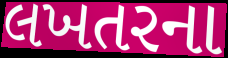
લખતરના